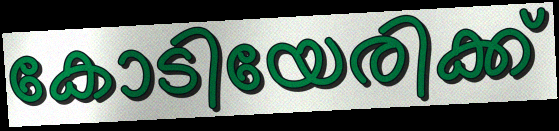
കോടിയേരിക്ക്